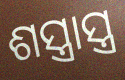
ଶସ୍ତ୍ରାସ୍ତ୍ର